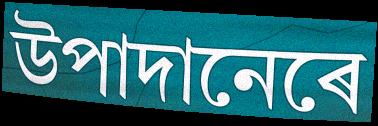
উপাদানেৰে